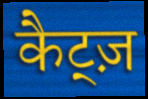
कैट्ज़